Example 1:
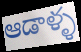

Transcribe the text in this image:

ఆడాళ్ళ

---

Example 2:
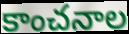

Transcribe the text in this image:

కాంచనాల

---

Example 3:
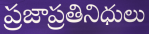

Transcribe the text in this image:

ప్రజాప్రతినిధులు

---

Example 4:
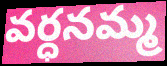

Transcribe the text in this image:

వర్ధనమ్మ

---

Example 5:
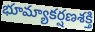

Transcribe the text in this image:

భూమ్యాకర్షణశక్తి